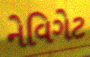
નેવિગેટ